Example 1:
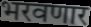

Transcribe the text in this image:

भरवणार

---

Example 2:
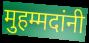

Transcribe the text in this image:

मुहम्मदांनी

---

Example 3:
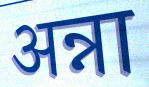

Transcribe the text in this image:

अन्ना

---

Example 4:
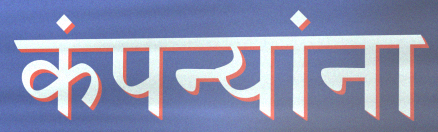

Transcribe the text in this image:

कंपन्यांना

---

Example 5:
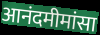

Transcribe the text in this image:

आनंदमीमांसा